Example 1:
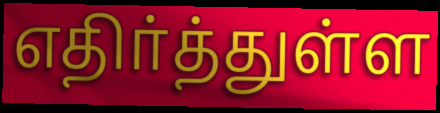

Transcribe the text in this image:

எதிர்த்துள்ள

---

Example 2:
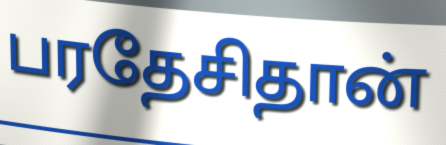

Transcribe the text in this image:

பரதேசிதான்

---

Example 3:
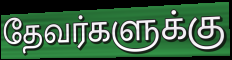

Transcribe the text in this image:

தேவர்களுக்கு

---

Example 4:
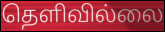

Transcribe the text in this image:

தெளிவில்லை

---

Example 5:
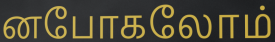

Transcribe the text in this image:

னபோகலோம்